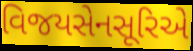
વિજયસેનસૂરિએ